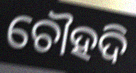
ଚୌହଦି